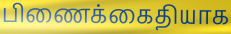
பிணைக்கைதியாக